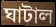
ঘাটাল